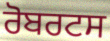
ਰੋਬਰਟਸ